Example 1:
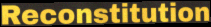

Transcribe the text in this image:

Reconstitution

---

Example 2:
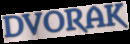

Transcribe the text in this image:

DVORAK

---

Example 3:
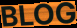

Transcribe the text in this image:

BLOG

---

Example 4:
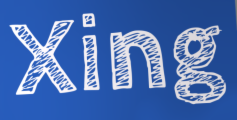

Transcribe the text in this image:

Xing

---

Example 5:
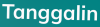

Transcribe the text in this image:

Tanggalin